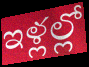
ఇళ్లల్లో